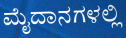
ಮೈದಾನಗಳಲ್ಲಿ